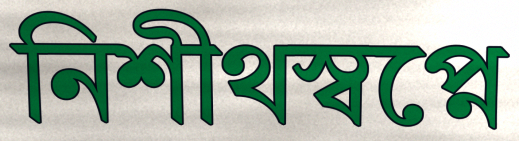
নিশীথস্বপ্নে